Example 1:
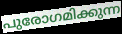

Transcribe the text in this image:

പുരോഗമിക്കുന്ന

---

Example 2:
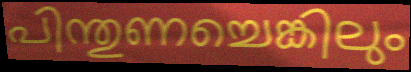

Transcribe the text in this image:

പിന്തുണച്ചെങ്കിലും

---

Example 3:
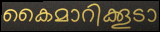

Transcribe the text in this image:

കൈമാറിക്കൂടാ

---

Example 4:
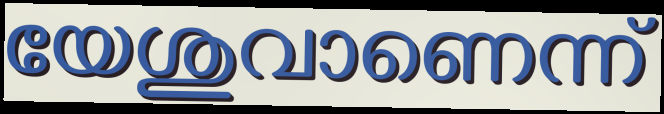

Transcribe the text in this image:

യേശുവാണെന്ന്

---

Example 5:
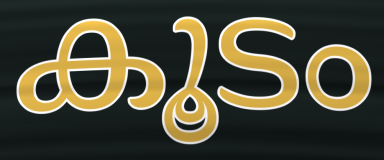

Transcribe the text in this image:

കൂടം